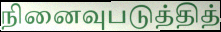
நினைவுபடுத்தித்